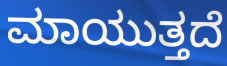
ಮಾಯುತ್ತದೆ